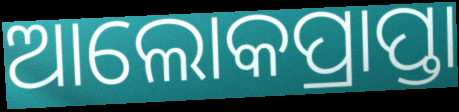
ଆଲୋକପ୍ରାପ୍ତା